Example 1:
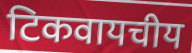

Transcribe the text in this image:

टिकवायचीय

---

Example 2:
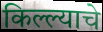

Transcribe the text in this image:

किल्ल्याचे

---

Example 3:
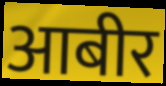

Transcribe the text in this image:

आबीर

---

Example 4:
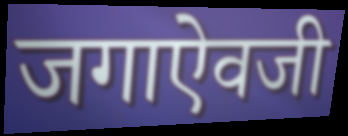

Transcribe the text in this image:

जगाऐवजी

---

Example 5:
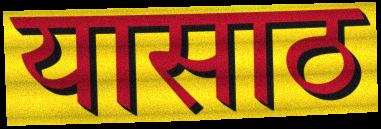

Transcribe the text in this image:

यासाठ